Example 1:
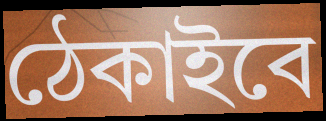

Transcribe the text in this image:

ঠেকাইবে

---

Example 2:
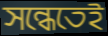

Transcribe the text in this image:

সন্ধেতেই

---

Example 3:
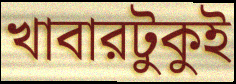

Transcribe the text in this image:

খাবারটুকুই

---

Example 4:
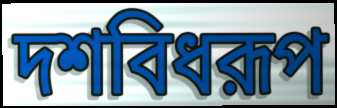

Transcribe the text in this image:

দশবিধরূপ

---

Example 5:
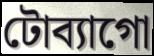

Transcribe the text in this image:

টোব্যাগো